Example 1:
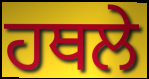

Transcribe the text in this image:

ਹਥਲੇ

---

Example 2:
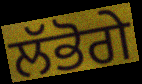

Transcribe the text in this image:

ਲੱਭੋਗੇ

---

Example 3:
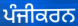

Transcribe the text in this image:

ਪੰਜੀਕਰਨ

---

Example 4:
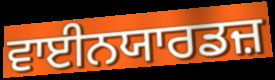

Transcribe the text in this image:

ਵਾਈਨਯਾਰਡਜ਼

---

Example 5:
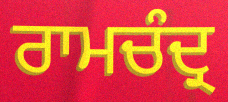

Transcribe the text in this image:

ਰਾਮਚੰਦ੍ਰ